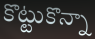
కొట్టుకొన్నా